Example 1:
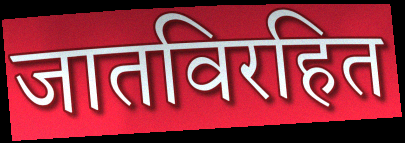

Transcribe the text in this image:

जातविरहित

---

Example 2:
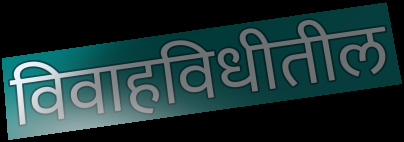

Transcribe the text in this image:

विवाहविधीतील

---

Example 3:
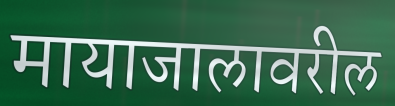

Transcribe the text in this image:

मायाजालावरील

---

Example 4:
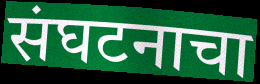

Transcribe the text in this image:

संघटनाचा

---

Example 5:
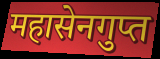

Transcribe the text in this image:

महासेनगुप्त